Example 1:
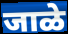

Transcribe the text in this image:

जाळे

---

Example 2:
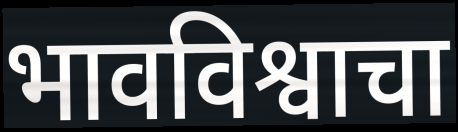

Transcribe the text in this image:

भावविश्वाचा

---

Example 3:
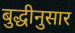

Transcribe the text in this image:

बुद्धीनुसार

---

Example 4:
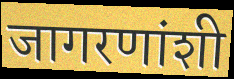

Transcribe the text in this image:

जागरणांशी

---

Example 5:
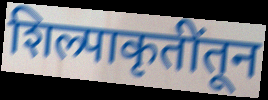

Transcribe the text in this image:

शिल्पाकृतींतून